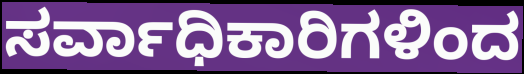
ಸರ್ವಾಧಿಕಾರಿಗಳಿಂದ